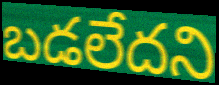
బడలేదని